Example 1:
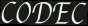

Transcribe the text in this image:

CODEC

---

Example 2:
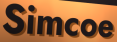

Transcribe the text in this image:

Simcoe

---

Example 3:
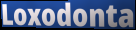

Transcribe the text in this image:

Loxodonta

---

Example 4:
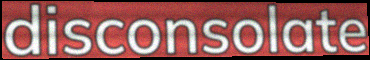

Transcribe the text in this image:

disconsolate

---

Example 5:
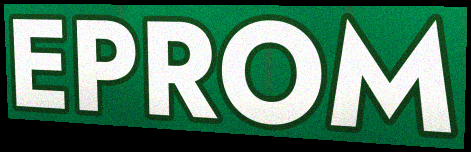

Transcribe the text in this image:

EPROM